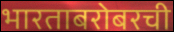
भारताबरोबरची